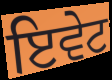
ਇਵੇਟ